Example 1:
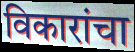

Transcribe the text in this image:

विकारांचा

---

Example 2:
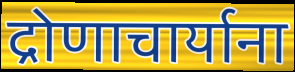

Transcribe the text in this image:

द्रोणाचार्याना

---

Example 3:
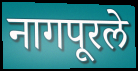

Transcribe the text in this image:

नागपूरले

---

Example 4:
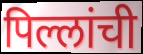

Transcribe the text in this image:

पिल्लांची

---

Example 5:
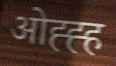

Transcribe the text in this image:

ओह्ह्ह